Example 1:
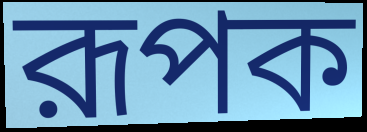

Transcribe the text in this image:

রূপক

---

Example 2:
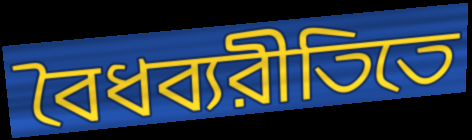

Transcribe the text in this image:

বৈধব্যরীতিতে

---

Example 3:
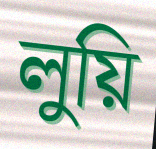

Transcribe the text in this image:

লুয়ি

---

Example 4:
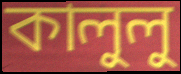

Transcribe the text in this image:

কালুলু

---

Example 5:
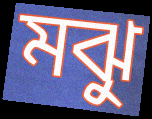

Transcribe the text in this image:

মঝু